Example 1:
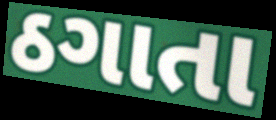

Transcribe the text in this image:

ઠગાતા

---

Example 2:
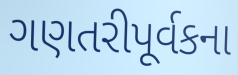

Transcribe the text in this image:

ગણતરીપૂર્વકના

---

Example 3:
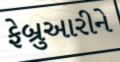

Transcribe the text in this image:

ફેબ્રુઆરીને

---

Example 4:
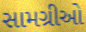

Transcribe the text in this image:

સામગ્રીઓ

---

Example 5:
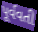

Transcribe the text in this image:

પૂર્વવતી